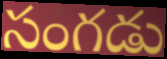
సంగడు